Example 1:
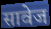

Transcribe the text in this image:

सावेज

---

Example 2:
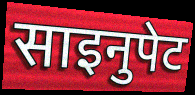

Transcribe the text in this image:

साइनुपेट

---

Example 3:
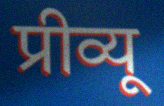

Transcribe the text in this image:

प्रीव्यू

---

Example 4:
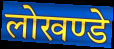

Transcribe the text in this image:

लोखण्डे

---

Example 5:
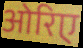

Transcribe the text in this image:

ओरिए